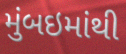
મુંબઇમાંથી